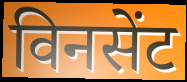
विनसेंट